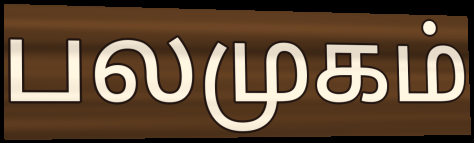
பலமுகம்